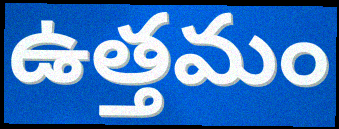
ఉత్తమం